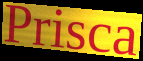
Prisca